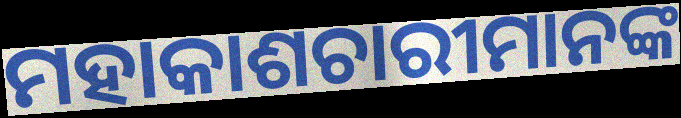
ମହାକାଶଚାରୀମାନଙ୍କ